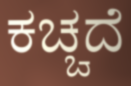
ಕಚ್ಚದೆ